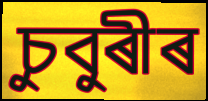
চুবুৰীৰ